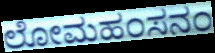
ಲೋಮಹಂಸನಂ